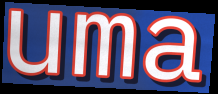
uma